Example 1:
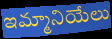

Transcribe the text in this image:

ఇమ్మానియేలు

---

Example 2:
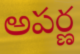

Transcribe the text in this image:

అపర్ణ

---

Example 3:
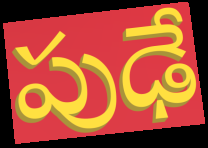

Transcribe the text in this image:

పుఢే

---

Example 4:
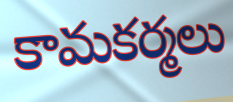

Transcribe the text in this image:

కామకర్మలు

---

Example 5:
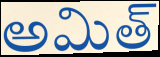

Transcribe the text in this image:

అమిత్